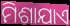
ମିଶାଯାଏ